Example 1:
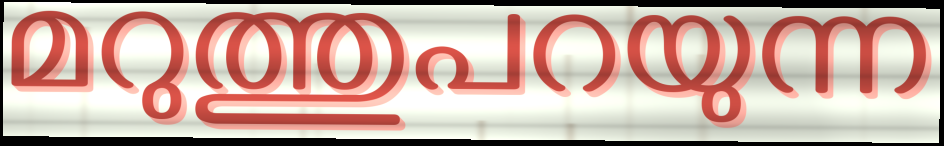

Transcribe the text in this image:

മറുത്തുപറയുന്ന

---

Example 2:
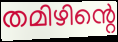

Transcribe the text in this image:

തമിഴിന്റെ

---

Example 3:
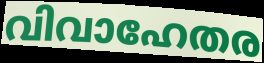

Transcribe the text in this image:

വിവാഹേതര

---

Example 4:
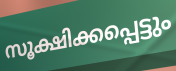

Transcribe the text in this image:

സൂക്ഷിക്കപ്പെട്ടും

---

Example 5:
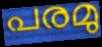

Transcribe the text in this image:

പരമു